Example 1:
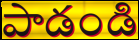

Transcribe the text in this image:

పాడండి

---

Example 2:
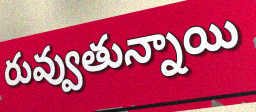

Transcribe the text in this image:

రువ్వుతున్నాయి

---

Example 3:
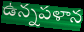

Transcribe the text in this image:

ఉన్నపళాన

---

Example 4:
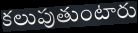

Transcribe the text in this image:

కలుపుతుంటారు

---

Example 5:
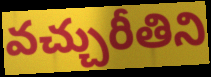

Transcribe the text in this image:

వచ్చురీతిని